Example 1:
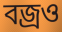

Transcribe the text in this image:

বজ্রও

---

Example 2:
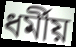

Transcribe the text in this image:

ধর্মীয়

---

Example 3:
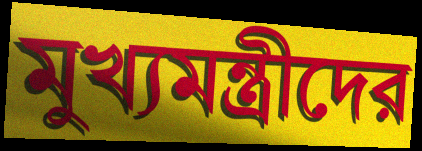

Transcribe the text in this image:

মুখ্যমন্ত্রীদের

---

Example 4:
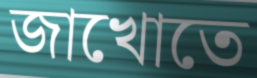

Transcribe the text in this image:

জাখোতে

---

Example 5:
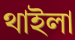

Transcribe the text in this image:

থাইলা